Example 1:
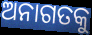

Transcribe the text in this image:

ଅନାଗତକୁ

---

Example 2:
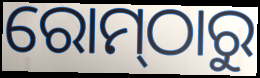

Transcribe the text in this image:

ରୋମ୍‌ଠାରୁ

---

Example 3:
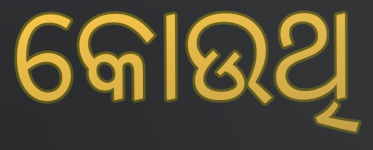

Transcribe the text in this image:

କୋଉଥି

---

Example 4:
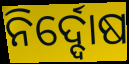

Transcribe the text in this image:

ନିର୍ଦ୍ଦୋଷ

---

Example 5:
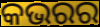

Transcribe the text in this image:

କଭରର